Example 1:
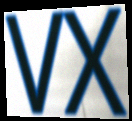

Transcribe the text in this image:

VX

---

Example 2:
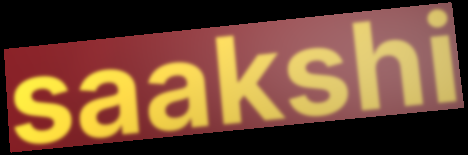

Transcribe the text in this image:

saakshi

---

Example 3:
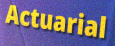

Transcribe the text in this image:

Actuarial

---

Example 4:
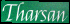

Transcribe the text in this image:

Tharsan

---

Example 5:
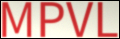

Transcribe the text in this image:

MPVL